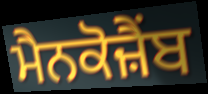
ਮੈਨਕੋਜ਼ੈਂਬ